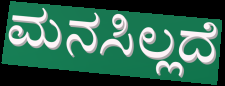
ಮನಸಿಲ್ಲದೆ